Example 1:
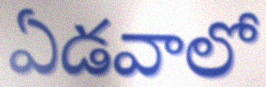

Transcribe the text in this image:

ఏడవాలో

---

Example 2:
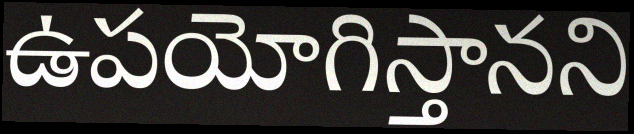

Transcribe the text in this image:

ఉపయోగిస్తానని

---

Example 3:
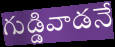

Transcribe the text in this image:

గుడ్డివాడనే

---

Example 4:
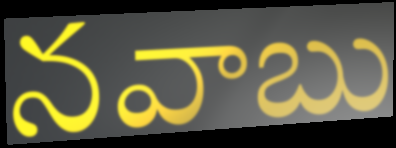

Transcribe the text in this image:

నవాబు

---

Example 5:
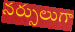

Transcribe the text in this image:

నర్సులుగా